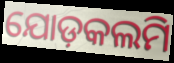
ଯୋଡ଼କଲମି